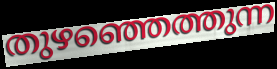
തുഴഞ്ഞെത്തുന്ന